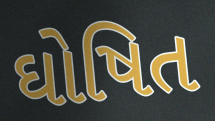
ઘોષિત